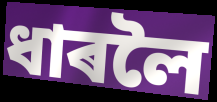
ধাৰলৈ